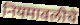
नियमावलीचे